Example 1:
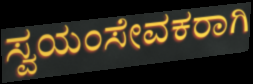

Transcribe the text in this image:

ಸ್ವಯಂಸೇವಕರಾಗಿ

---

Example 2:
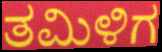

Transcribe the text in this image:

ತಮಿಳಿಗ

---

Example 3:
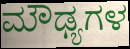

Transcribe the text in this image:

ಮೌಢ್ಯಗಳ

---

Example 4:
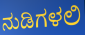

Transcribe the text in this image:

ನುಡಿಗಳಲಿ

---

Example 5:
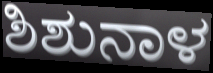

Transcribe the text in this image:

ಶಿಶುನಾಳ